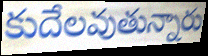
కుదేలవుతున్నారు